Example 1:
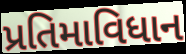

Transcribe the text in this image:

પ્રતિમાવિધાન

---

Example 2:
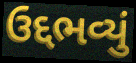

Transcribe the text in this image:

ઉદ્દભવ્યું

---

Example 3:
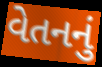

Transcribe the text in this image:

વેતનનું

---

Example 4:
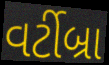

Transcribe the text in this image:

વર્ટીબ્રા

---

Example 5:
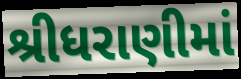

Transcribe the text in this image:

શ્રીધરાણીમાં